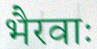
भैरवाः